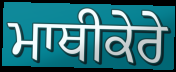
ਮਾਥੀਕੇਰੇ